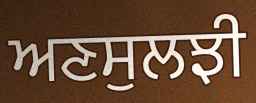
ਅਣਸੁਲਝੀ